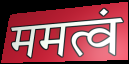
ममत्वं